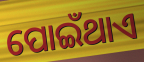
ପୋଇଁଥାଏ